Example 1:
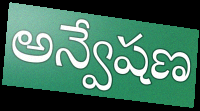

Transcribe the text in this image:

అన్వేషణ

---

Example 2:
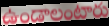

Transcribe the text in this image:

ఉండాలంటారు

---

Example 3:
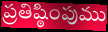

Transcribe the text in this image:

ప్రతిష్ఠింపుము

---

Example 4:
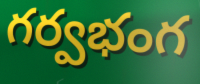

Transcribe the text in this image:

గర్వభంగ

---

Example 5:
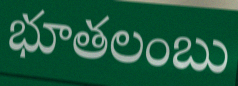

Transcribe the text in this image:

భూతలంబు